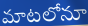
మాటలోనూ